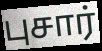
புசார்